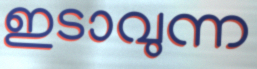
ഇടാവുന്ന